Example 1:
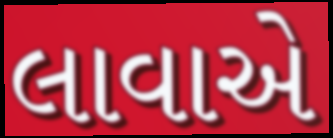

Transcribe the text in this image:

લાવાએ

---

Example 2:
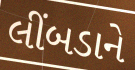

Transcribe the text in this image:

લીંબડાને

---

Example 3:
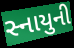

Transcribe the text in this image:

સ્નાયુની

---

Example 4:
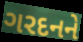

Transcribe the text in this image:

ગરદનને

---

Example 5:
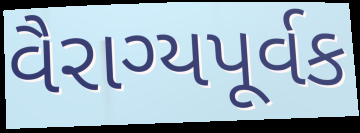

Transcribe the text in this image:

વૈરાગ્યપૂર્વક